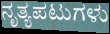
ನೃತ್ಯಪಟುಗಳು